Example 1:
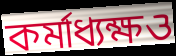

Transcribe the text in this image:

কর্মাধ্যক্ষও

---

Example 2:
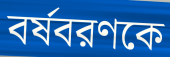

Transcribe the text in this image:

বর্ষবরণকে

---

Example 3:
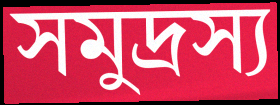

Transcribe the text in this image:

সমুদ্রস্য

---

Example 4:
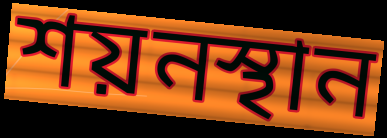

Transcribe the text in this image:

শয়নস্থান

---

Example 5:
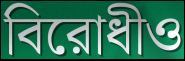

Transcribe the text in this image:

বিরোধীও